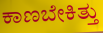
ಕಾಣಬೇಕಿತ್ತು